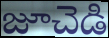
జూచెడి